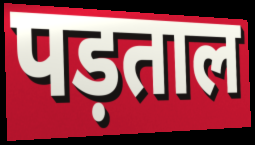
पड़ताल